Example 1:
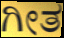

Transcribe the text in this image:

ಗೀತ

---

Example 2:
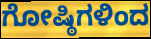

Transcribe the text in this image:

ಗೋಷ್ಠಿಗಳಿಂದ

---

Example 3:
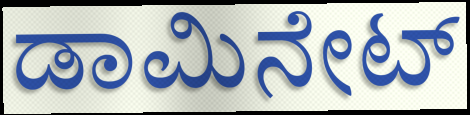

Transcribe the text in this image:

ಡಾಮಿನೇಟ್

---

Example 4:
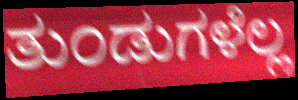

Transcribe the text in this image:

ತುಂಡುಗಳೆಲ್ಲ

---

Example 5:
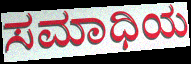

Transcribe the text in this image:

ಸಮಾಧಿಯ